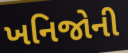
ખનિજોની